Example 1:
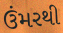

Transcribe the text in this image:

ઉંમરથી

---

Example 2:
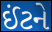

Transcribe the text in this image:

ઈંટને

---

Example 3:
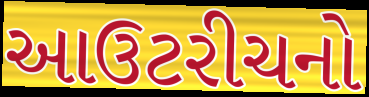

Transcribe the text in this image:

આઉટરીચનો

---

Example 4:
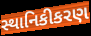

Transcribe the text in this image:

સ્થાનિકીકરણ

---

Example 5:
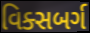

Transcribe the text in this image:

વિક્સબર્ગ